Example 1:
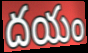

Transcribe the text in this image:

దయం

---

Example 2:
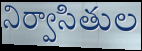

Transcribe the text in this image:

నిర్వాసితుల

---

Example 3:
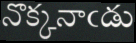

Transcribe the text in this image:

నొక్కనాఁడు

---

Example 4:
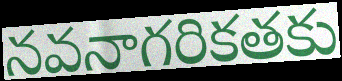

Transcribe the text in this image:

నవనాగరికతకు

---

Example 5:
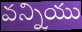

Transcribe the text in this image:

వన్నియు